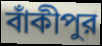
বাঁকীপুর